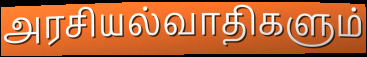
அரசியல்வாதிகளும்